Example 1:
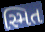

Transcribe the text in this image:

સ્મિત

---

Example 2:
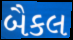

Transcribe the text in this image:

બૈકલ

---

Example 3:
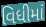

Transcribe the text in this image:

વિધીમાં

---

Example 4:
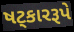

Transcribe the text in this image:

ષટ્કારરૂપે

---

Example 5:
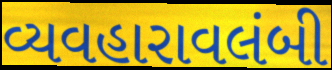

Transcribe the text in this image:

વ્યવહારાવલંબી